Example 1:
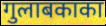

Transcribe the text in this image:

गुलाबकाका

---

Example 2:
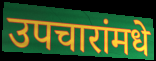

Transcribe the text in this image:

उपचारांमधे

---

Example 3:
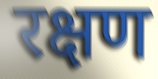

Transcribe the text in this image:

रक्षण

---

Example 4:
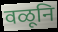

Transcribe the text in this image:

वळूनि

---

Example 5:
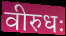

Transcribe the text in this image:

वीरुधः